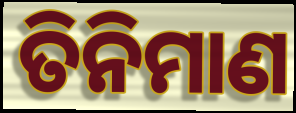
ତିନିମାଣ